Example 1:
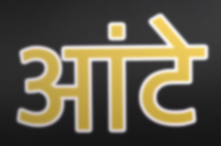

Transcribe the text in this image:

आंटे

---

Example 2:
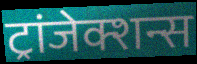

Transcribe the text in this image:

ट्रांजेक्शन्स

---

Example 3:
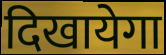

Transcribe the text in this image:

दिखायेगा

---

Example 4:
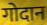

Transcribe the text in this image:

गोदान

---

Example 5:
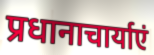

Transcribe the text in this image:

प्रधानाचार्याएं